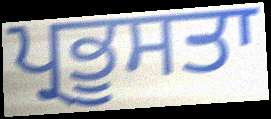
ਪ੍ਰਭੂਸਤਾ